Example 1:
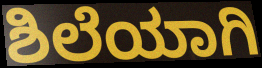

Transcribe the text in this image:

ಶಿಲೆಯಾಗಿ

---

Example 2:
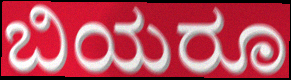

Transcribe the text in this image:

ಬಿಯರೂ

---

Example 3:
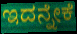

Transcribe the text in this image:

ಇದನ್ನೇಕೆ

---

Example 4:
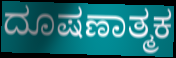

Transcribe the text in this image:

ದೂಷಣಾತ್ಮಕ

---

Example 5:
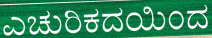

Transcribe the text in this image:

ಎಚುರಿಕದಯಿಂದ